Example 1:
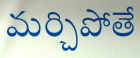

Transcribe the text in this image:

మర్చిపోతే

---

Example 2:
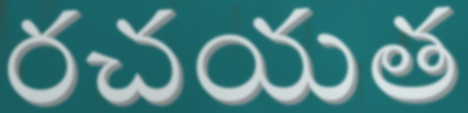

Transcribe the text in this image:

రచయత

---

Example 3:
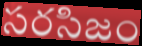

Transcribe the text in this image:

సరసిజం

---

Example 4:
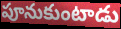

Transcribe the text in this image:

పూనుకుంటాడు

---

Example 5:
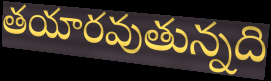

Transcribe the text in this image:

తయారవుతున్నది